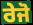
ਰੇਜੋ